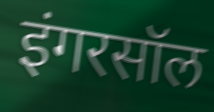
इंगरसॉल